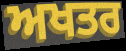
ਅਖਤਰ